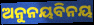
ଅନୁନୟବିନୟ